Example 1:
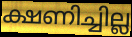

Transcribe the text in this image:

ക്ഷണിച്ചില്ല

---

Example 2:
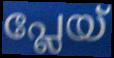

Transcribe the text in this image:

പ്ലേയ്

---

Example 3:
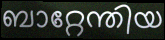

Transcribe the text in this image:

ബാറ്റേന്തിയ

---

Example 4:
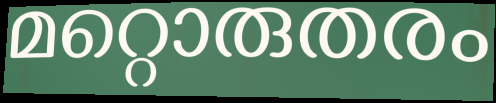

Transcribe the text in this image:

മറ്റൊരുതരം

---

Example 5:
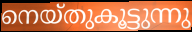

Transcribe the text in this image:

നെയ്തുകൂട്ടുന്നു